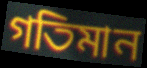
গতিমান